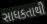
સાધકતાથી